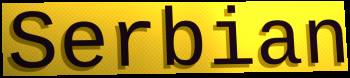
Serbian